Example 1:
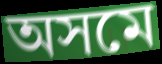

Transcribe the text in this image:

অসমে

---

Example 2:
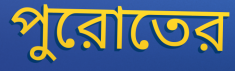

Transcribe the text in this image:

পুরোতের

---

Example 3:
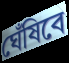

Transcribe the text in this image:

ঘেঁষিবে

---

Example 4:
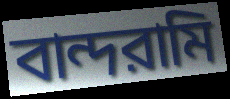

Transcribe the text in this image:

বান্দরামি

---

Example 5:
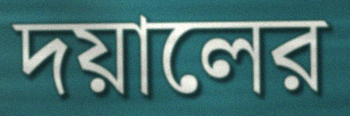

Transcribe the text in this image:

দয়ালের